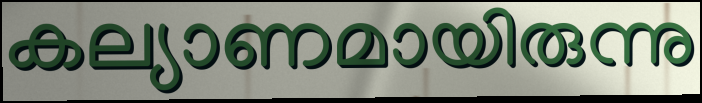
കല്യാണമായിരുന്നു